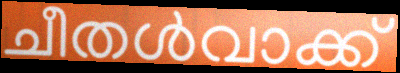
ചീതൾവാക്ക്